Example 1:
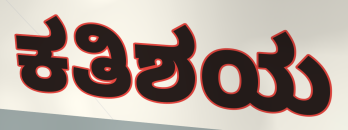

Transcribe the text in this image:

ಕತಿಶಯ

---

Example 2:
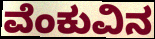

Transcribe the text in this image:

ವೆಂಕುವಿನ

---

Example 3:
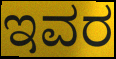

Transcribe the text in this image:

ಇವರ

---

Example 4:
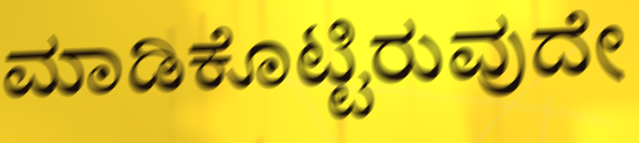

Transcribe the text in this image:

ಮಾಡಿಕೊಟ್ಟಿರುವುದೇ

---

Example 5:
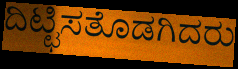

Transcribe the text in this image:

ದಿಟ್ಟಿಸತೊಡಗಿದರು